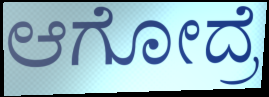
ಆಗೋದ್ರೆ